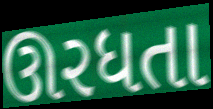
ઊરધતા